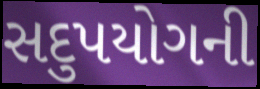
સદુપયોગની